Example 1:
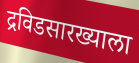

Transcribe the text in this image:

द्रविडसारख्याला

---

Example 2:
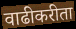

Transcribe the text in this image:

वाढीकरीता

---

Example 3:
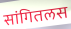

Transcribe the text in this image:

सांगितलस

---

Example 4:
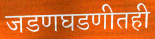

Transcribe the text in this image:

जडणघडणीतही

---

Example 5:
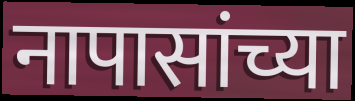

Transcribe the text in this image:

नापासांच्या